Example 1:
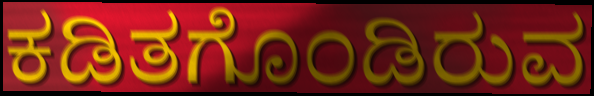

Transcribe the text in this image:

ಕಡಿತಗೊಂಡಿರುವ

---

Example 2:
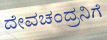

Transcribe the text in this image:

ದೇವಚಂದ್ರನಿಗೆ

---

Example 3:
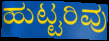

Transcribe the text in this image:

ಹುಟ್ಟರಿವು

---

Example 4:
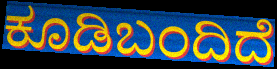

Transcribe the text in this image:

ಕೂಡಿಬಂದಿದೆ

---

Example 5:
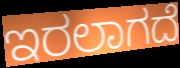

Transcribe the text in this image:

ಇರಲಾಗದೆ